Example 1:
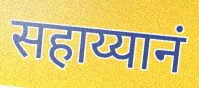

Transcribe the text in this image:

सहाय्यानं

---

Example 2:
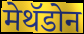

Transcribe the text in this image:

मेथॅडोन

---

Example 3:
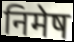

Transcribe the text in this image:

निमेष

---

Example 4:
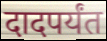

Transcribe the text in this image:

दादपर्यंत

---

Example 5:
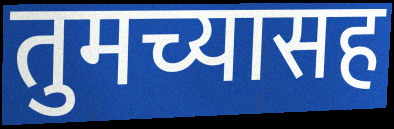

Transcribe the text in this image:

तुमच्यासह